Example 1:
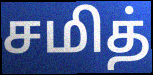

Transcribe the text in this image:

சமித்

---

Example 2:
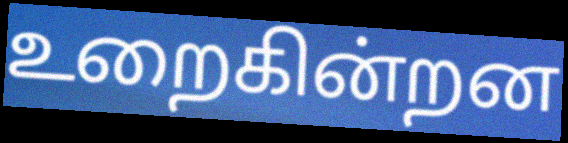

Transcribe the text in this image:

உறைகின்றன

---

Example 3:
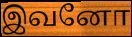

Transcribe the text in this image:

இவனோ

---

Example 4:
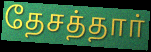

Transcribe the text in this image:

தேசத்தார்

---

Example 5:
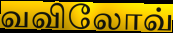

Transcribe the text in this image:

வவிலோவ்